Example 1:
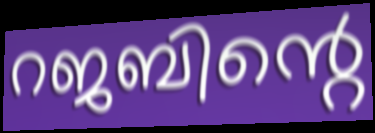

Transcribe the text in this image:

റജബിന്റെ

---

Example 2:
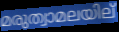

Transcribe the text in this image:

മരുത്വാമലയില്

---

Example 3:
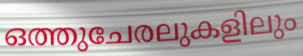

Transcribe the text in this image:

ഒത്തുചേരലുകളിലും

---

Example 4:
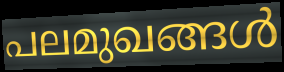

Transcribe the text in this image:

പലമുഖങ്ങൾ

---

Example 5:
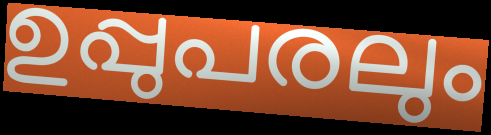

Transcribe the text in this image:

ഉപ്പുപരലും